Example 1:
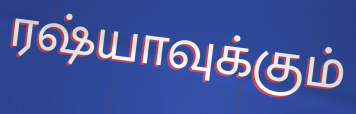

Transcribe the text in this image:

ரஷ்யாவுக்கும்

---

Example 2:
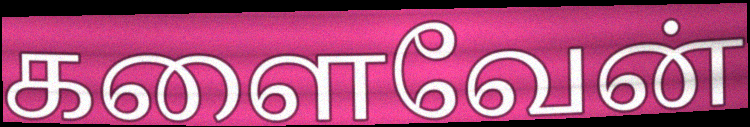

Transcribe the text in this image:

களைவேன்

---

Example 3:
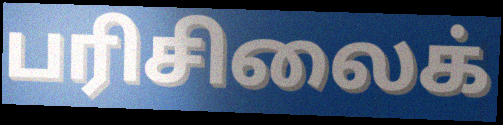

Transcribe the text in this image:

பரிசிலைக்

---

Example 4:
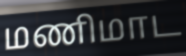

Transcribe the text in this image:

மணிமாட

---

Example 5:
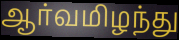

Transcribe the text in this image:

ஆர்வமிழந்து